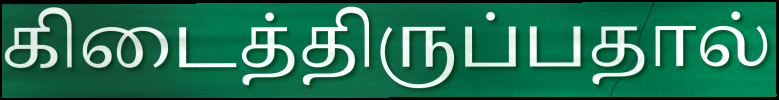
கிடைத்திருப்பதால்